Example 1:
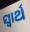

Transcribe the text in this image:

ସ୍ୱାର୍ଥ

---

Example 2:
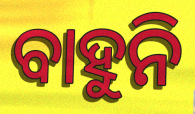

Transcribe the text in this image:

ବାହୁନି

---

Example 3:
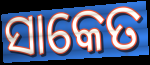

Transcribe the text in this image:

ସାକେତ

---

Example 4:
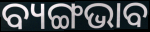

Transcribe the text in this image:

ବ୍ୟଙ୍ଗଭାବ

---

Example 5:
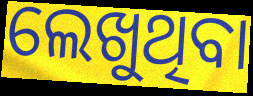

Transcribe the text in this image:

ଲେଖୁଥିବା